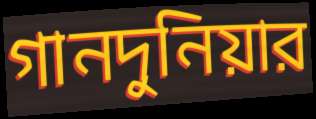
গানদুনিয়ার